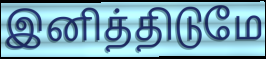
இனித்திடுமே